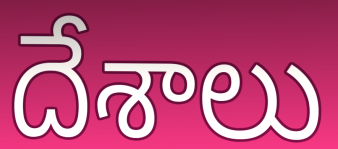
దేశాలు